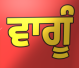
ਵਾਗੂੰ